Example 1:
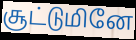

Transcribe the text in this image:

சூட்டுமினே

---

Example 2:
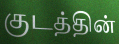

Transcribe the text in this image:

குடத்தின்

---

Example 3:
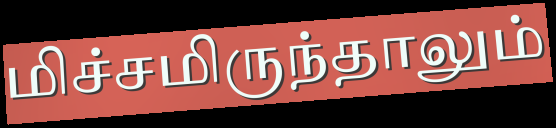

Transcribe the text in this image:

மிச்சமிருந்தாலும்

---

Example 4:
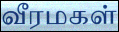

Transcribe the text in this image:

வீரமகள்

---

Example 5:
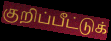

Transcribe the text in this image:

குறிப்பீட்டுக்